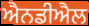
ਐਨਡੀਐਲ